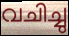
വചിച്ചു